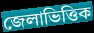
জেলাভিত্তিক